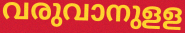
വരുവാനുളള